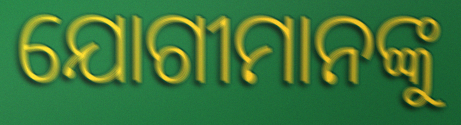
ଯୋଗୀମାନଙ୍କୁ